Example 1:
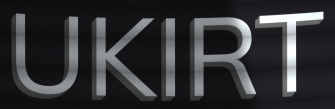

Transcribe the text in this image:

UKIRT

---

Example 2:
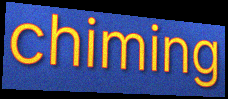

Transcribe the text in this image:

chiming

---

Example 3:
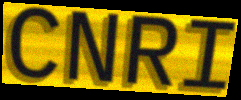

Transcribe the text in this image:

CNRI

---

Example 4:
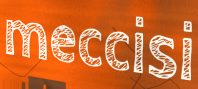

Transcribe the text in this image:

meccisi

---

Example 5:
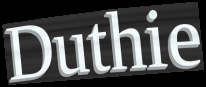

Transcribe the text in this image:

Duthie